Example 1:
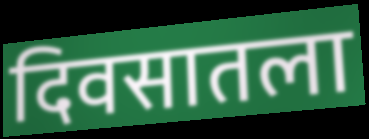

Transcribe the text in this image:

दिवसातला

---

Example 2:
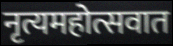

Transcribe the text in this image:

नृत्यमहोत्सवात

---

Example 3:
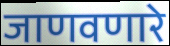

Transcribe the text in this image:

जाणवणारे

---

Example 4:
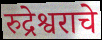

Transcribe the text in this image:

रुद्रेश्वराचे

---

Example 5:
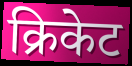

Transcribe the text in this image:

क्रिकेट